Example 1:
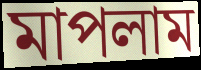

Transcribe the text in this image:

মাপলাম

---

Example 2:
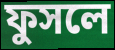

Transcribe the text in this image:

ফুসলে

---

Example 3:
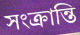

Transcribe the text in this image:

সংক্রান্তি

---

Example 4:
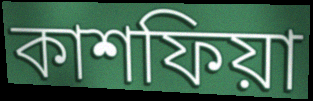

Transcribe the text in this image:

কাশফিয়া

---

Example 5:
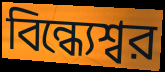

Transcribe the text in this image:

বিন্ধ্যেশ্বর